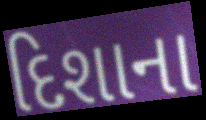
દિશાના